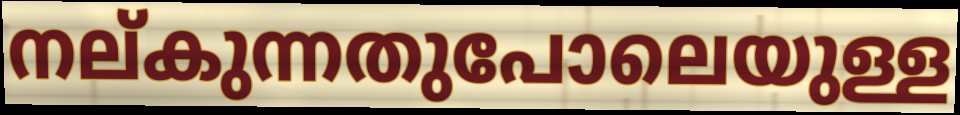
നല്കുന്നതുപോലെയുള്ള